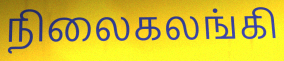
நிலைகலங்கி